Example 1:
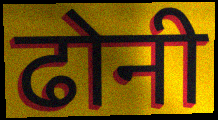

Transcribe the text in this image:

ढोनी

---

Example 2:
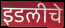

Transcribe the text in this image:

इडलीचे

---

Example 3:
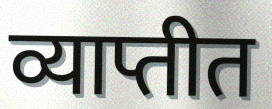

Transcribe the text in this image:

व्याप्तीत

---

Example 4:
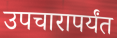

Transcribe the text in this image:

उपचारापर्यंत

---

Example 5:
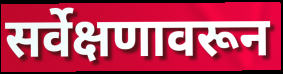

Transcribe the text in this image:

सर्वेक्षणावरून